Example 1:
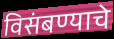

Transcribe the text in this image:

विसंबण्याचे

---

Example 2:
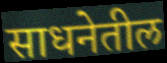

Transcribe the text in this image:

साधनेतील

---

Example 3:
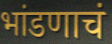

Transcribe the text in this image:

भांडणाचं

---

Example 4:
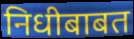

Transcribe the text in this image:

निधीबाबत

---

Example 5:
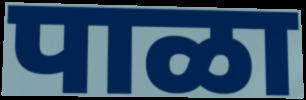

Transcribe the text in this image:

पाळा